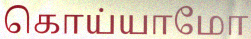
கொய்யாமோ